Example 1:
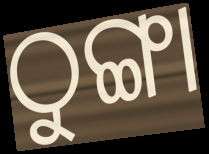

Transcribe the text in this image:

ଠୁଙ୍ଗା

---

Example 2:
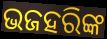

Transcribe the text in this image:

ଭଜହରିଙ୍କ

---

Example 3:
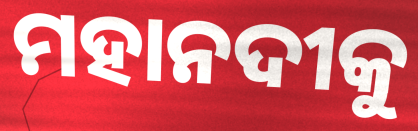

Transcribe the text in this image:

ମହାନଦୀକୁ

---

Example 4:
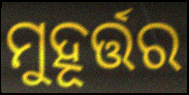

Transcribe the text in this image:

ମୁହୂର୍ତ୍ତର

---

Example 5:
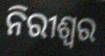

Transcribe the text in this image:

ନିରୀଶ୍ୱର